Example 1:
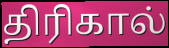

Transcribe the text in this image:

திரிகால்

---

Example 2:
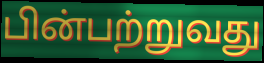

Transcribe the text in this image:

பின்பற்றுவது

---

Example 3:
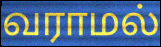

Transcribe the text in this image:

வராமல்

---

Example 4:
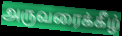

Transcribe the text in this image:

அருவரைக்கீழ்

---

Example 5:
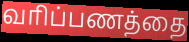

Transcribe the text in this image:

வரிப்பணத்தை